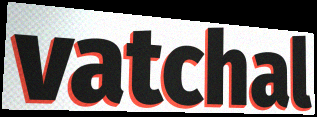
vatchal